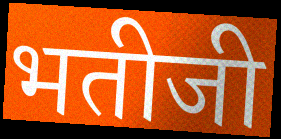
भतीजी